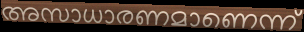
അസാധാരണമാണെന്ന്